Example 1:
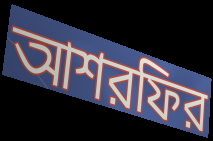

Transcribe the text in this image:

আশরফির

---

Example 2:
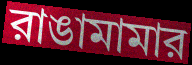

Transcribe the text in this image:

রাঙামামার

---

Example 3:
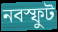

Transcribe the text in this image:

নবস্ফুট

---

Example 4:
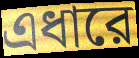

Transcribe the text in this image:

এধারে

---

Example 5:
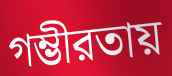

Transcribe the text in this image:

গম্ভীরতায়